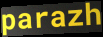
parazh